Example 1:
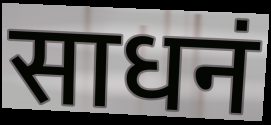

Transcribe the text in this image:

साधनं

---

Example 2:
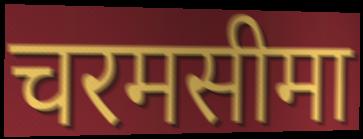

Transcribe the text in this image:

चरमसीमा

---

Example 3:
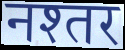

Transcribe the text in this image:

नश्तर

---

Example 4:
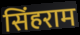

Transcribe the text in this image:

सिंहराम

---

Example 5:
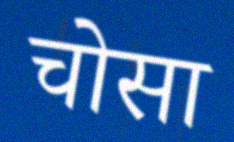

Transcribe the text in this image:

चोसा